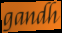
gandh